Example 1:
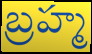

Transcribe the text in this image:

బ్రహ్మ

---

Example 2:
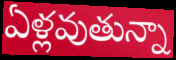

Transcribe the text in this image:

ఏళ్లవుతున్నా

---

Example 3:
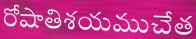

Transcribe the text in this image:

రోషాతిశయముచేత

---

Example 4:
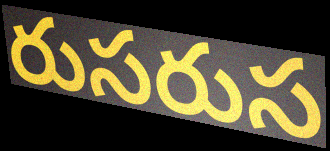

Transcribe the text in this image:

రుసరుస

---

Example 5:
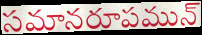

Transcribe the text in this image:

సమానరూపమున్